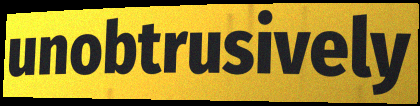
unobtrusively